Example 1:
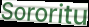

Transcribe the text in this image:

Sororitu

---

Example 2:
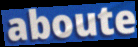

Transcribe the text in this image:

aboute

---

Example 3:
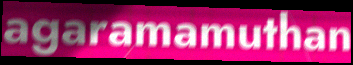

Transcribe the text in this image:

agaramamuthan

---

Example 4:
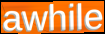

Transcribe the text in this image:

awhile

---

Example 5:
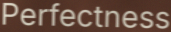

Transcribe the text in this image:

Perfectness